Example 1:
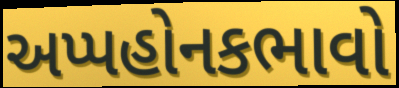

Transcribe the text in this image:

અપ્પહોનકભાવો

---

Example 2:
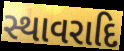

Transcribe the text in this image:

સ્થાવરાદિ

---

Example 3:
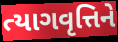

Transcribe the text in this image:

ત્યાગવૃત્તિને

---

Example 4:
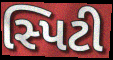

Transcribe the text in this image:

સ્પિટી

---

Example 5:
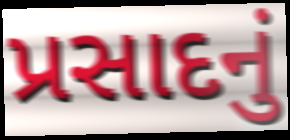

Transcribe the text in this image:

પ્રસાદનું